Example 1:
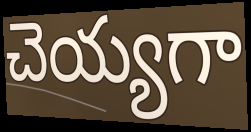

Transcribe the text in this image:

చెయ్యగా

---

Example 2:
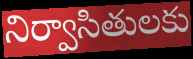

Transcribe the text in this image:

నిర్వాసితులకు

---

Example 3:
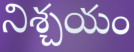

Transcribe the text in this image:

నిశ్చయం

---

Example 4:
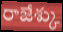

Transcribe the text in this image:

రాజేశ్కు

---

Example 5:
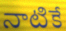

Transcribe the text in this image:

నాటికే